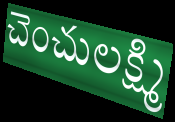
చెంచులక్ష్మి